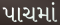
પાચમાં